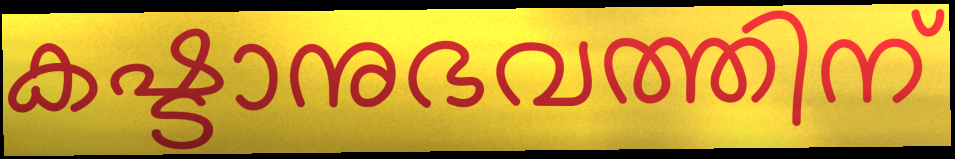
കഷ്ടാനുഭവത്തിന്